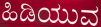
ಹಿಡಿಯುವ